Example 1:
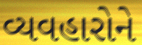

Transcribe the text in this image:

વ્યવહારોને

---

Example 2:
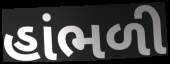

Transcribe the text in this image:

હાંભળી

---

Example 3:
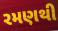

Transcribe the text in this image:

રમણથી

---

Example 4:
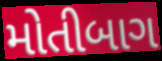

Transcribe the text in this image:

મોતીબાગ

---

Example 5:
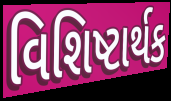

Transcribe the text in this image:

વિશિષ્ટાર્થક